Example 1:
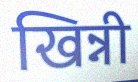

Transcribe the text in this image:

खिन्नी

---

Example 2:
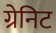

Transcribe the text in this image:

ग्रेनिट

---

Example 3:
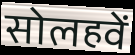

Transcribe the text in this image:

सोलहवें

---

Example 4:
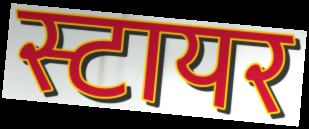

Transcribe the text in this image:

स्टायर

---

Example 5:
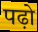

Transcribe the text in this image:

पढ़ो